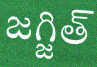
జగ్జిత్